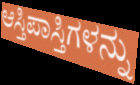
ಆಸ್ತಿಪಾಸ್ತಿಗಳನ್ನು